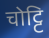
चोट्टि